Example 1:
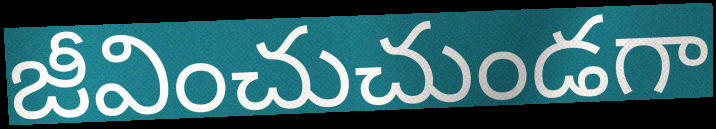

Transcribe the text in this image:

జీవించుచుండగా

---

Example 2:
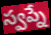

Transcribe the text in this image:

స్వప్నే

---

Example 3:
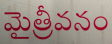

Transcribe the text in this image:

మైత్రీవనం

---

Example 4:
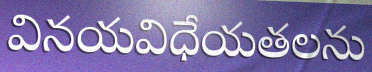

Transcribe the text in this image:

వినయవిధేయతలను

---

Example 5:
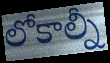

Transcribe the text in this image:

లోకాల్నీ